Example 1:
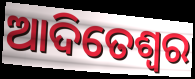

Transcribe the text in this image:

ଆଦିତେଶ୍ଵର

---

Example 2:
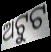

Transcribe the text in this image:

ଅଟୁଟ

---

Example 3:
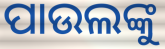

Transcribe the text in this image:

ପାଉଲଙ୍କୁ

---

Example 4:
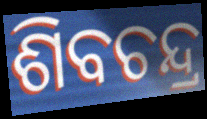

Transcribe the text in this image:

ଶିବଚନ୍ଦ୍ର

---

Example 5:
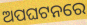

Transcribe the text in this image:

ଅପଘଟନରେ